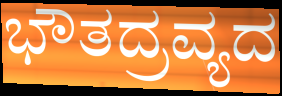
ಭೌತದ್ರವ್ಯದ